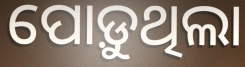
ପୋଡ଼ୁଥିଲା